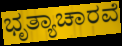
ಭೃತ್ಯಾಚಾರವೆ